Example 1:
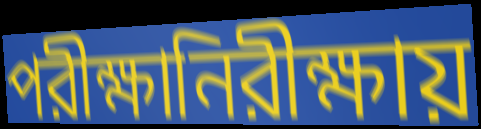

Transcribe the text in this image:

পরীক্ষানিরীক্ষায়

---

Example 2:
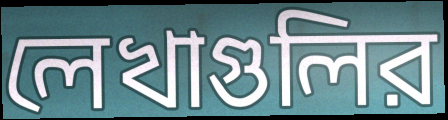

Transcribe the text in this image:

লেখাগুলির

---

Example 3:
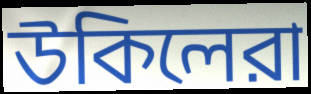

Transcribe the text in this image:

উকিলেরা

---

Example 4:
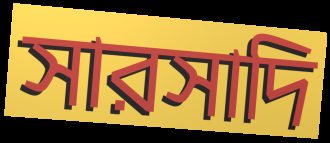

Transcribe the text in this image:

সারসাদি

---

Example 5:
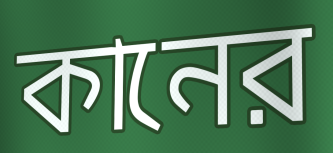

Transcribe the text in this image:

কানের